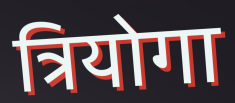
त्रियोगा